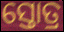
ସ୍ତୋତ୍ର